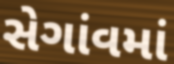
સેગાંવમાં